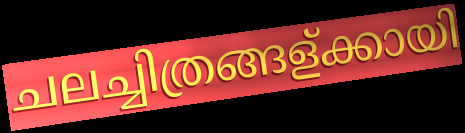
ചലച്ചിത്രങ്ങള്ക്കായി